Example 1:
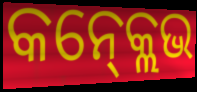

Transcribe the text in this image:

କନ୍କ୍ଲେଭ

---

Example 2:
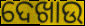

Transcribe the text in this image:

ଦେଖାଉ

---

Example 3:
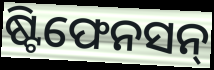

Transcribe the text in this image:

ଷ୍ଟିଫେନସନ୍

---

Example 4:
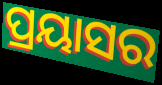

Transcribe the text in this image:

ପ୍ରୟାସର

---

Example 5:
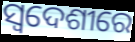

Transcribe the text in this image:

ସ୍ୱଦେଶୀରେ